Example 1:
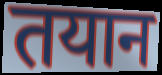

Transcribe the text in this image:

तयान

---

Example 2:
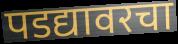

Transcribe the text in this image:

पडद्यावरचा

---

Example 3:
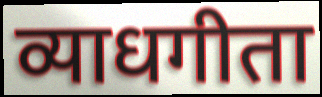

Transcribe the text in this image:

व्याधगीता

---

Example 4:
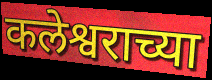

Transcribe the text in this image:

कलेश्वराच्या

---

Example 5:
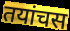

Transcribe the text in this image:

तयांचस